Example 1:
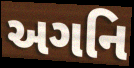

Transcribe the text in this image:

અગનિ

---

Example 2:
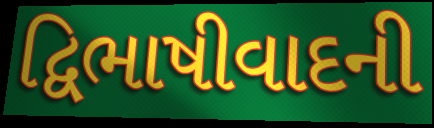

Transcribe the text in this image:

દ્વિભાષીવાદની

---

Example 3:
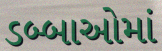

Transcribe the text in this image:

ડબ્બાઓમાં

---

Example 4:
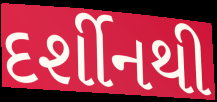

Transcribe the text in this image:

દર્શીનથી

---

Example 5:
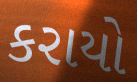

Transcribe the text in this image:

કરાયો